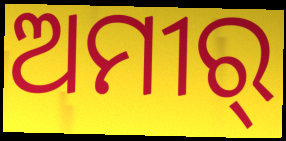
ଅମୀର୍